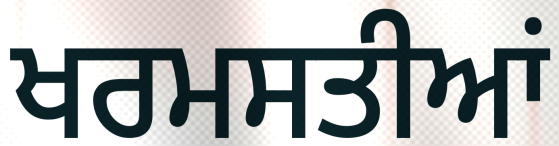
ਖਰਮਸਤੀਆਂ